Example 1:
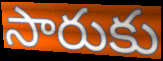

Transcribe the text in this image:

సారుకు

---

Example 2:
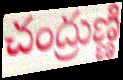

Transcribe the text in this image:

చంద్రుణ్ణి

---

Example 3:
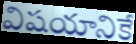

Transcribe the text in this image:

విషయానికే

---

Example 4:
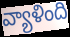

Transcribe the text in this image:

వ్యాళింది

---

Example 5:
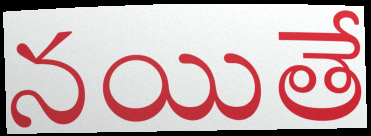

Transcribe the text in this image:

నయితే